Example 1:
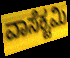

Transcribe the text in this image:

ವಾಸೆಕ್ಟಮಿ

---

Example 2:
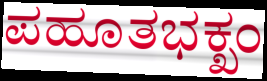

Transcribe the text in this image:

ಪಹೂತಭಕ್ಖಂ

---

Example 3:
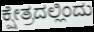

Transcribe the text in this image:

ಕ್ಷೇತ್ರದಲ್ಲಿಂದು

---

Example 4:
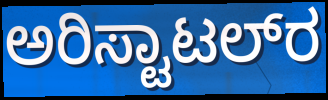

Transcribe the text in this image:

ಅರಿಸ್ಟಾಟಲ್‍ರ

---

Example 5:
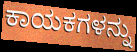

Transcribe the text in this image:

ಕಾಯಕಗಳನ್ನು